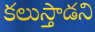
కలుస్తాడని